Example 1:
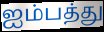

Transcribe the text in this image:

ஐம்பத்து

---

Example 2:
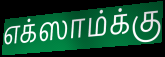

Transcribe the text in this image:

எக்ஸாம்க்கு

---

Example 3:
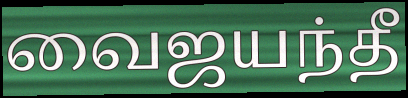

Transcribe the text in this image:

வைஜயந்தீ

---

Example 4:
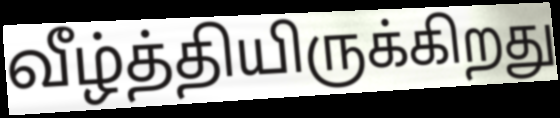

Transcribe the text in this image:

வீழ்த்தியிருக்கிறது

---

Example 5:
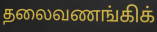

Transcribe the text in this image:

தலைவணங்கிக்